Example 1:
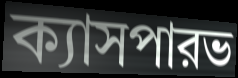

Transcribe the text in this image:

ক্যাসপারভ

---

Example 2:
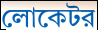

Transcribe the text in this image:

লোকেটর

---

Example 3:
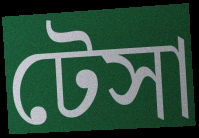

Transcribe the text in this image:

টেসা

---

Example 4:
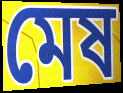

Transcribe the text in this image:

মেষ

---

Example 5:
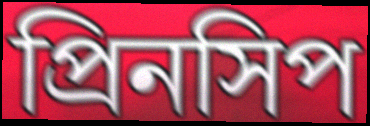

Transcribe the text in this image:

প্রিনসিপ